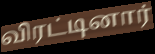
விரட்டினார்